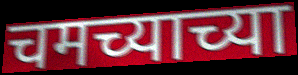
चमच्याच्या